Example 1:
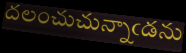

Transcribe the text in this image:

దలంచుచున్నాఁడను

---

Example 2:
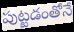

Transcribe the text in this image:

పుట్టడంతోనే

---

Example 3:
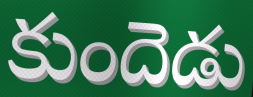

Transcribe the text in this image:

కుందెడు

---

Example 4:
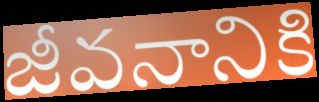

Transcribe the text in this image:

జీవనానికి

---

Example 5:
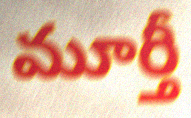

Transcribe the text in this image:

మూర్తీ